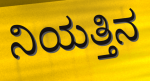
ನಿಯತ್ತಿನ